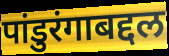
पांडुरंगाबद्दल